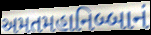
અમતમહાનિબ્બાનં